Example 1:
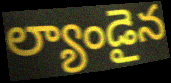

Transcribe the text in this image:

ల్యాండైన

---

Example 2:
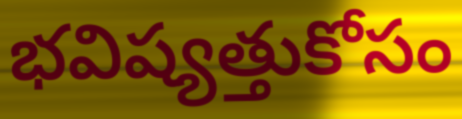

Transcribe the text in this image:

భవిష్యత్తుకోసం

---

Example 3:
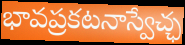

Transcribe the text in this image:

భావప్రకటనాస్వేచ్ఛ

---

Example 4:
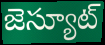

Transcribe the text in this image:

జెస్యూట్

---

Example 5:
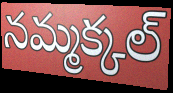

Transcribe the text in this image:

నమ్మక్కల్